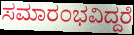
ಸಮಾರಂಭವಿದ್ದರೆ